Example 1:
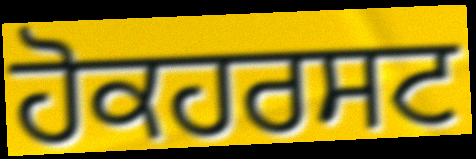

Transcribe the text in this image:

ਹੋਕਹਰਸਟ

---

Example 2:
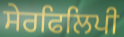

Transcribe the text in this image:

ਸੇਰਫਿਲਿਪੀ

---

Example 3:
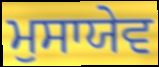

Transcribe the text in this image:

ਮੁਸਾਯੇਵ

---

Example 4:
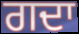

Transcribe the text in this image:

ਗਦਾ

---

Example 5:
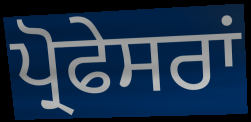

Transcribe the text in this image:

ਪ੍ਰੋਫੇਸਰਾਂ